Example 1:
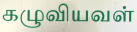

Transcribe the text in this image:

கழுவியவள்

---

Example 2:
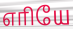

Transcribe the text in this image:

எரியே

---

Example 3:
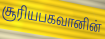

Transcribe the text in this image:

சூரியபகவானின்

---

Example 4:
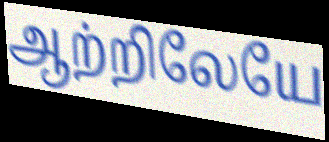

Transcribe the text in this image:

ஆற்றிலேயே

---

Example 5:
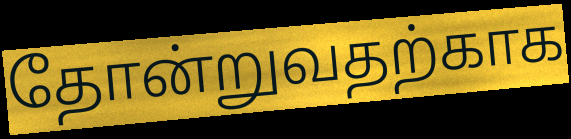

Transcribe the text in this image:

தோன்றுவதற்காக